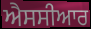
ਐਸਸੀਆਰ